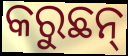
କରୁଛନ୍